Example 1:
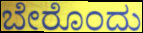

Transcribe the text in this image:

ಬೇರೊಂದು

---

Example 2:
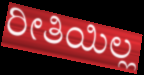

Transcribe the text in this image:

ರೀತಿಯಿಲ್ಲ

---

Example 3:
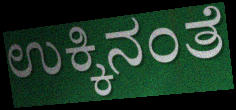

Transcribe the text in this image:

ಉಕ್ಕಿನಂತೆ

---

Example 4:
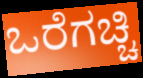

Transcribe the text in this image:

ಒರೆಗಚ್ಚಿ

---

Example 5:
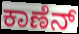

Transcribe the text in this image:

ಕಾಣೆನ್